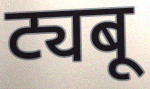
ट्यबू